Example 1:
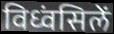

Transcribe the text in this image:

विध्वंसिलें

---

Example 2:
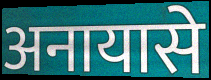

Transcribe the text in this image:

अनायासे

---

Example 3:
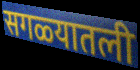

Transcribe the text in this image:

सगळ्यातली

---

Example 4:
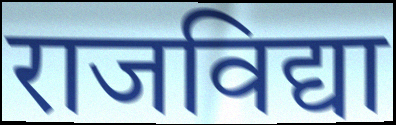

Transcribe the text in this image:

राजविद्या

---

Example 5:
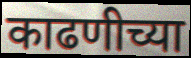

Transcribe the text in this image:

काढणीच्या